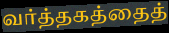
வர்த்தகத்தைத்